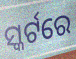
ସ୍କର୍ଟରେ